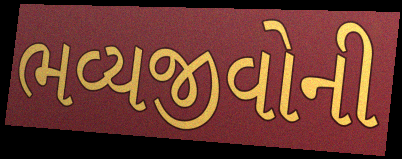
ભવ્યજીવોની